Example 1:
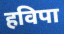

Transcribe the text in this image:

हविपा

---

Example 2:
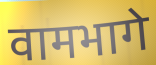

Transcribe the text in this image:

वामभागे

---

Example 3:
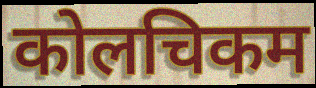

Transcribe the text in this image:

कोलचिकम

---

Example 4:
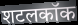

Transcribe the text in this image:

शटलकॉक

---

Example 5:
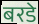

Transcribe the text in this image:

बरडे